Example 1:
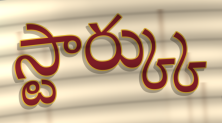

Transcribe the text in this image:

స్టార్క్కు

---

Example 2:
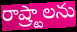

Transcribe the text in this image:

రాష్ర్టాలను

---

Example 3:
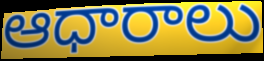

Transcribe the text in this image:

ఆధారాలు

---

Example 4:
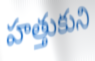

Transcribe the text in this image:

హత్తుకుని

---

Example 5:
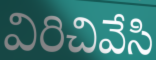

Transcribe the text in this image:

విరిచివేసి